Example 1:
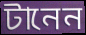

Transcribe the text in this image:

টানেন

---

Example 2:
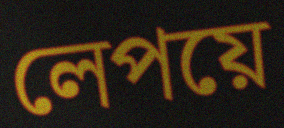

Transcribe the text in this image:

লেপয়ে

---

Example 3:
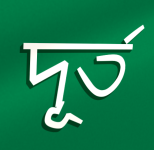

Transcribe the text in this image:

দূর্ত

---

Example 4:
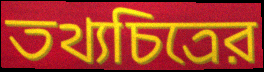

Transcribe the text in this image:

তথ্যচিত্রের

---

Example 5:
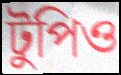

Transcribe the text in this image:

টুপিও